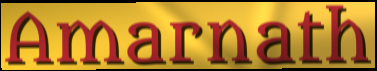
Amarnath